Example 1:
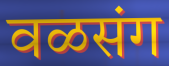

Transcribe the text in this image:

वळसंग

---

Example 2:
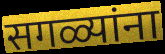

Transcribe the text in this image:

सगळ्यांना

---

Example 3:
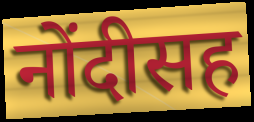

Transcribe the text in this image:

नोंदीसह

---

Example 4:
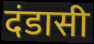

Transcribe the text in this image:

दंडासी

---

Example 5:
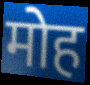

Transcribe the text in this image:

मोह